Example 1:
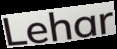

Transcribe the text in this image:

Lehar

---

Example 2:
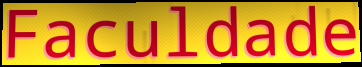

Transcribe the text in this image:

Faculdade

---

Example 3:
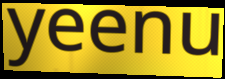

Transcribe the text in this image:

yeenu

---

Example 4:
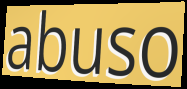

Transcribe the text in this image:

abuso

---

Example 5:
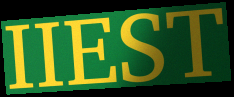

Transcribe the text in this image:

IIEST